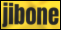
jibone